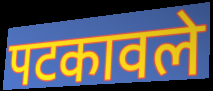
पटकावले